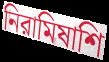
নিরামিষাশি